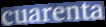
cuarenta